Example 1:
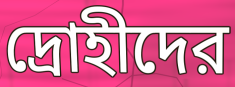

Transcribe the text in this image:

দ্রোহীদের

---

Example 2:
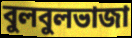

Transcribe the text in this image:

বুলবুলভাজা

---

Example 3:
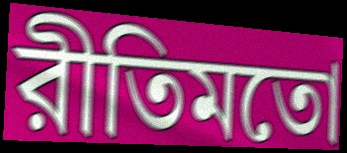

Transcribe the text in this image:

রীতিমতো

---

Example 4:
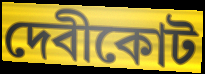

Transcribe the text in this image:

দেবীকোট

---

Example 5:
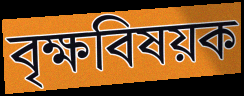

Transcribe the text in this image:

বৃক্ষবিষয়ক